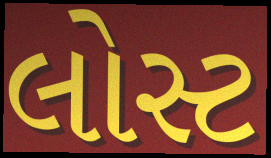
લોસ્ટ